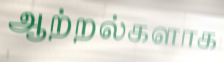
ஆற்றல்களாக